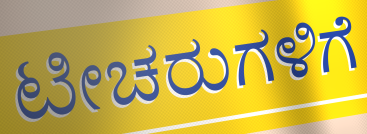
ಟೀಚರುಗಳಿಗೆ